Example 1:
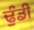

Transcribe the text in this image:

ਢੁੰਡੀ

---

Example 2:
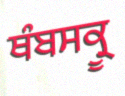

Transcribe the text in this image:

ਥੰਬਸਕ੍ਰੂ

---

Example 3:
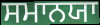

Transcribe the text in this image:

ਸਮਾਨਯਾ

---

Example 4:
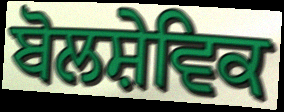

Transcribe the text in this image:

ਬੋਲਸ਼ੇਵਿਕ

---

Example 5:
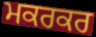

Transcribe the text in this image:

ਮਕਰਕਰ